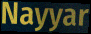
Nayyar